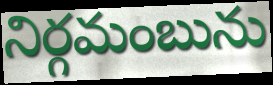
నిర్గమంబును